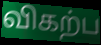
விகற்ப